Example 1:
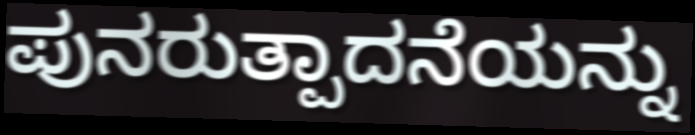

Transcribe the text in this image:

ಪುನರುತ್ಪಾದನೆಯನ್ನು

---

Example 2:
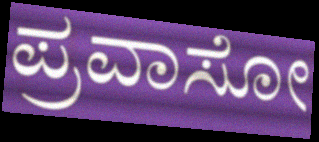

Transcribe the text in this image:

ಪ್ರವಾಸೋ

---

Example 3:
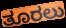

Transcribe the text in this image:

ತೂರಲು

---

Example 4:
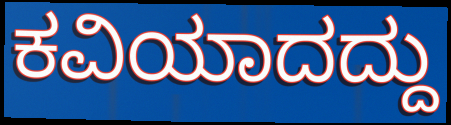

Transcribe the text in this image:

ಕವಿಯಾದದ್ದು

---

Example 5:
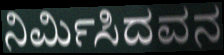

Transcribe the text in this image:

ನಿರ್ಮಿಸಿದವನ